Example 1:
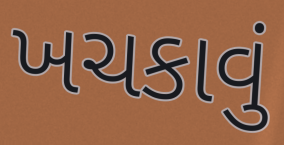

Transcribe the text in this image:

ખચકાવું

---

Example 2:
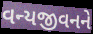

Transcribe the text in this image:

વન્યજીવનને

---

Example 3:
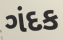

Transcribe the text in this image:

ગંદક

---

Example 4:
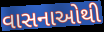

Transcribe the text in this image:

વાસનાઓથી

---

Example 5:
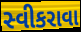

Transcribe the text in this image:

સ્વીકરાવા